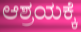
ಆಶ್ರಯಕ್ಕೆ